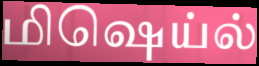
மிஷெய்ல்